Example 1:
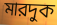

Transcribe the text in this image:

মারদুক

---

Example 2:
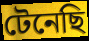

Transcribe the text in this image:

টেনেছি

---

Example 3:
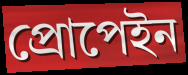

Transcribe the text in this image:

প্রোপেইন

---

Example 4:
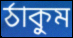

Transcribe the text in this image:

ঠাকুম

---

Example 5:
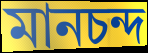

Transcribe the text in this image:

মানচন্দ